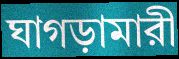
ঘাগড়ামারী